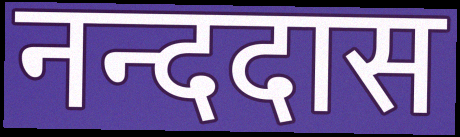
नन्ददास